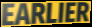
EARLIER